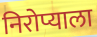
निरोप्याला